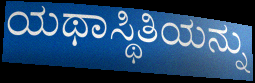
ಯಥಾಸ್ಥಿತಿಯನ್ನು